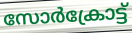
സോർക്രോട്ട്